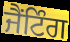
ਜੈਂਟਿੰਗ